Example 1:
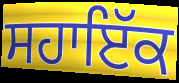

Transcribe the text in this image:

ਸਹਾਇੱਕ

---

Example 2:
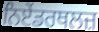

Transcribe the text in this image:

ਨਿਏਂਡਰਥਲਜ਼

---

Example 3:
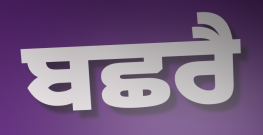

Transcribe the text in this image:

ਬਛਰੈ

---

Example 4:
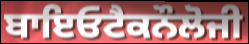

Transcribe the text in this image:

ਬਾਇਓਟੈਕਨੌਲੋਜੀ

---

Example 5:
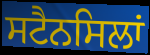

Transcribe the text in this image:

ਸਟੈਨਸਿਲਾਂ